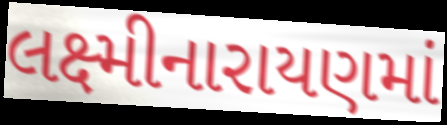
લક્ષ્મીનારાયણમાં